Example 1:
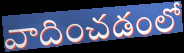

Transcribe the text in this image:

వాదించడంలో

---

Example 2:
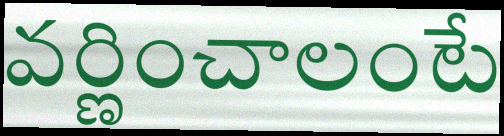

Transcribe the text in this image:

వర్ణించాలంటే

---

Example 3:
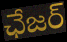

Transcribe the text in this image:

ఛేజర్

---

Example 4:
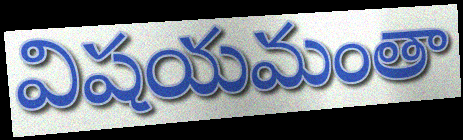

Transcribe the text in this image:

విషయమంతా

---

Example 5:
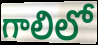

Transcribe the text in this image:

గాలిలో